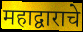
महाद्वाराचे